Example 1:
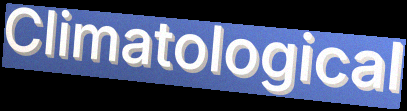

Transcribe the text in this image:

Climatological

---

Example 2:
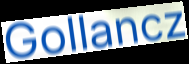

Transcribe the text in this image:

Gollancz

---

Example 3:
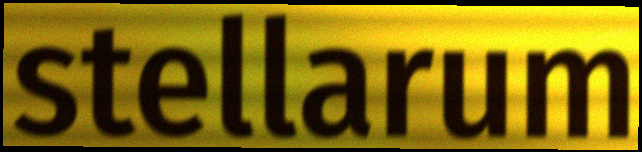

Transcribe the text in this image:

stellarum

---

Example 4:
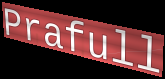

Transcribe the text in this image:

Prafull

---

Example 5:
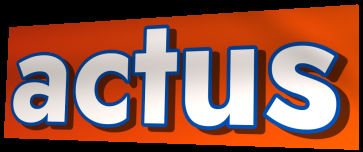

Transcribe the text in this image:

actus